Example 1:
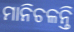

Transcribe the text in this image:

ମାନିଚଳନ୍ତି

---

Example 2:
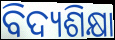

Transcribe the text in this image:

ବିଦ୍ୟଶିକ୍ଷା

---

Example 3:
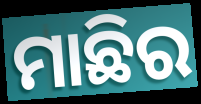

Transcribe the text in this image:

ମାଛିର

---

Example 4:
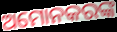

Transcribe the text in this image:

ଅମୋନକରଙ୍କ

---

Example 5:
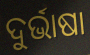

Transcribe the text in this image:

ଦୁର୍ଭାଷା